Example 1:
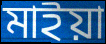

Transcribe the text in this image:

মাইয়া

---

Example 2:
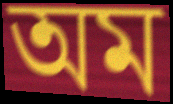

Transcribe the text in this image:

অম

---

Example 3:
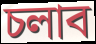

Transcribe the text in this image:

চলাব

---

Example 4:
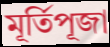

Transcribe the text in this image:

মূৰ্তিপূজা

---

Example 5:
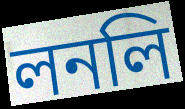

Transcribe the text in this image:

লনলি